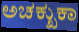
ಅಚಕ್ಖುಕಾ